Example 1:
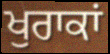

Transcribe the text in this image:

ਖੁਰਾਕਾਂ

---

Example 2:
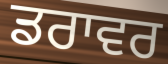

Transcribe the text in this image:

ਡਰਾਵਰ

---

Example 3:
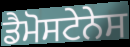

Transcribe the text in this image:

ਡੈਮੋਸਟੇਨੇਸ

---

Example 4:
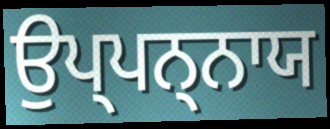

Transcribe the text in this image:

ਉਪ੍ਪਨ੍ਨਾਯ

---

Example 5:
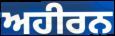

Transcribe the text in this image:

ਅਹੀਰਨ